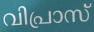
വിപ്രാസ്